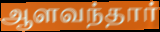
ஆளவந்தார்